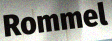
Rommel